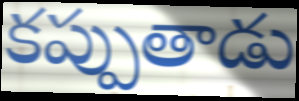
కప్పుతాడు